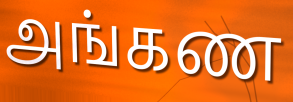
அங்கண